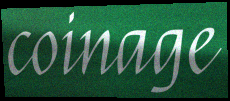
coinage